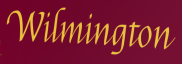
Wilmington